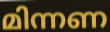
മിന്നണ